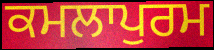
ਕਮਲਾਪੁਰਮ